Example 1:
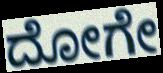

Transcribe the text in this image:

ದೋಗೇ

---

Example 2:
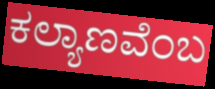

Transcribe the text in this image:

ಕಲ್ಯಾಣವೆಂಬ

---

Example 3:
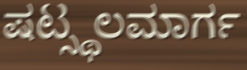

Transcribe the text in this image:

ಷಟ್ಸ್ಥಲಮಾರ್ಗ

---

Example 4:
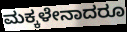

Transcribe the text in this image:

ಮಕ್ಕಳೇನಾದರೂ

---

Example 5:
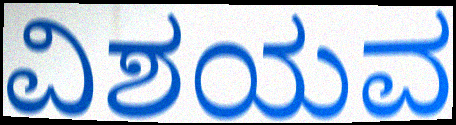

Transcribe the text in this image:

ವಿಶಯವ